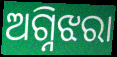
ଅଗ୍ନିଝରା